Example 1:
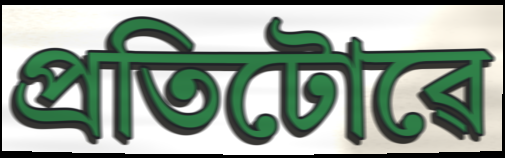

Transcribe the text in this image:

প্ৰতিটোৱে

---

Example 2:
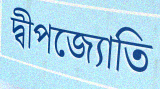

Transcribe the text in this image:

দ্বীপজ্যোতি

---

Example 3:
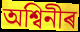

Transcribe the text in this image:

অশ্বিনীৰ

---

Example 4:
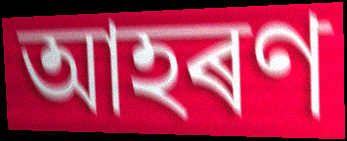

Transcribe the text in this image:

আহৰণ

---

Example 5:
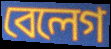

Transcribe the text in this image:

বেলেগ